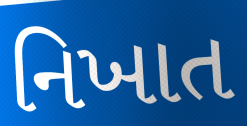
નિખાત